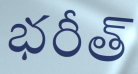
భరీత్